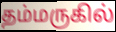
தம்மருகில்